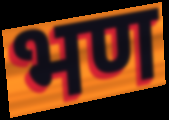
भण